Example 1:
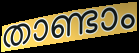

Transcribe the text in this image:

താണ്ടാം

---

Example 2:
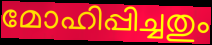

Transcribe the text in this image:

മോഹിപ്പിച്ചതും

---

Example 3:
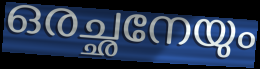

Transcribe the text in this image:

ഒരച്ഛനേയും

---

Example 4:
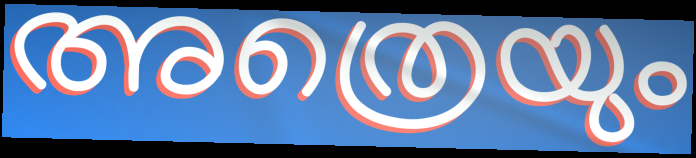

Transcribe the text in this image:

അത്രെയും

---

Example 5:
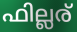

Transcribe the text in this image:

ഫില്ലര്